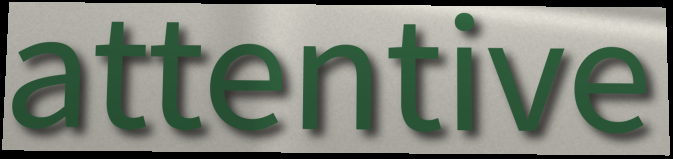
attentive